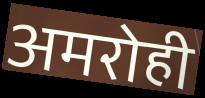
अमरोही